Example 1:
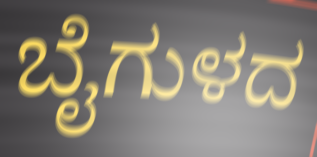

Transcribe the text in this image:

ಬೈಗುಳದ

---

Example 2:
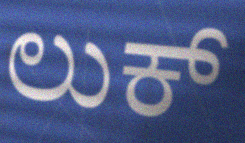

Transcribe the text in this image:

ಲುಕ್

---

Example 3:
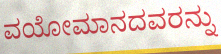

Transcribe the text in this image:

ವಯೋಮಾನದವರನ್ನು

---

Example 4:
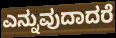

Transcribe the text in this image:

ಎನ್ನುವುದಾದರೆ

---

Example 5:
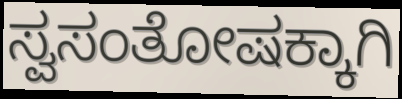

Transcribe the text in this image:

ಸ್ವಸಂತೋಷಕ್ಕಾಗಿ